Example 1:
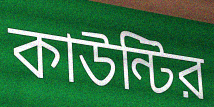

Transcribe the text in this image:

কাউন্টির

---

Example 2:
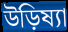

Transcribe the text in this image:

উড়িষ্যা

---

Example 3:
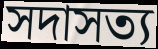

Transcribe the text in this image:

সদাসত্য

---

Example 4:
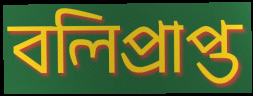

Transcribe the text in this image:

বলিপ্রাপ্ত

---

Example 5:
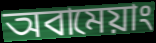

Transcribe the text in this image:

অবামেয়াং